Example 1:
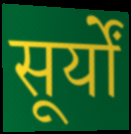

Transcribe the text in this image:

सूर्यों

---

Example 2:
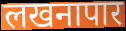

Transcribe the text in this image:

लखनापार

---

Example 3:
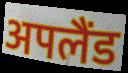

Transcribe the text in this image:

अपलैंड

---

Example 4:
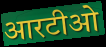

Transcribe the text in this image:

आरटीओ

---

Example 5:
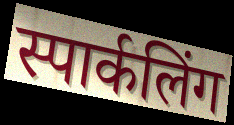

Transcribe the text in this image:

स्पार्कलिंग